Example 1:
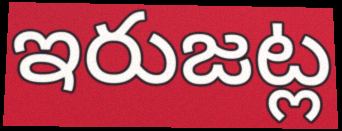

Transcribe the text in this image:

ఇరుజట్ల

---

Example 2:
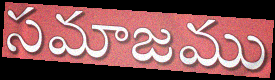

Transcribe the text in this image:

సమాజము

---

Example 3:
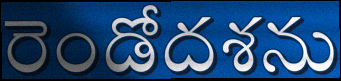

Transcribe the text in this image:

రెండోదశను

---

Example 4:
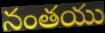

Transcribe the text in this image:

నంతయు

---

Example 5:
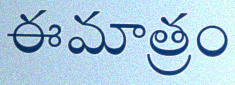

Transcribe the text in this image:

ఈమాత్రం